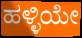
ಹಳ್ಳಿಯೇ